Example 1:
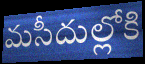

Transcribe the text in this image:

మసీదుల్లోకి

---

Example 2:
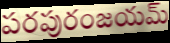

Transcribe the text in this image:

పరపురంజయమ్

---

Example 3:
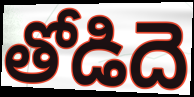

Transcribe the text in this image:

తోడిదె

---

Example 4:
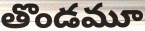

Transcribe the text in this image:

తొండమూ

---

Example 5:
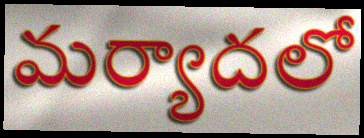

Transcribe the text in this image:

మర్యాదలో